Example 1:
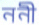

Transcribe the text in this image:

ননী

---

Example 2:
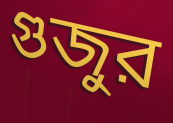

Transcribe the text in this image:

গুজুর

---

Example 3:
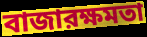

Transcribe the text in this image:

বাজারক্ষমতা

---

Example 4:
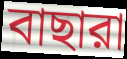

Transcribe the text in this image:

বাছারা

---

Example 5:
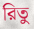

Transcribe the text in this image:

রিতু